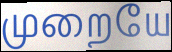
முறையே